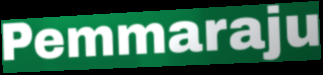
Pemmaraju